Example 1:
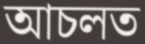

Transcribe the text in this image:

আচলত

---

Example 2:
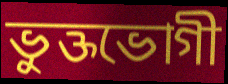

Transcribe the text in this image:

ভুক্তভোগী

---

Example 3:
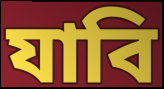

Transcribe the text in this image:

যাবি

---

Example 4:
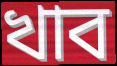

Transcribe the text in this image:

খাব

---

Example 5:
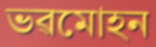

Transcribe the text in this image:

ভৱমোহন